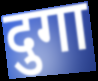
दुगा